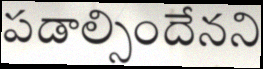
పడాల్సిందేనని